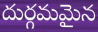
దుర్గమమైన